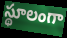
స్థూలంగా